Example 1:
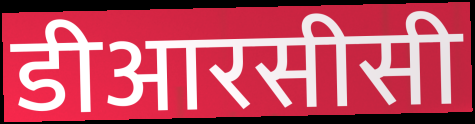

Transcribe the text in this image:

डीआरसीसी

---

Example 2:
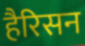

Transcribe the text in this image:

हैरिसन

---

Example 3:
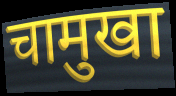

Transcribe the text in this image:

चामुखा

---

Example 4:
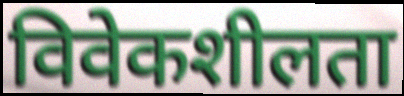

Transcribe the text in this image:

विवेकशीलता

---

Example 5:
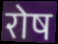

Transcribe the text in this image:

रोष